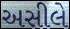
અસીલે